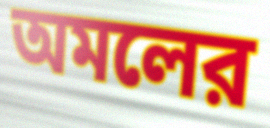
অমলের